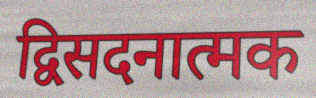
द्विसदनात्मक